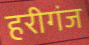
हरीगंज